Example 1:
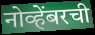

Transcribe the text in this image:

नोव्हेंबरची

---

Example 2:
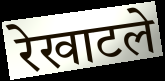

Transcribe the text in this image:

रेखाटले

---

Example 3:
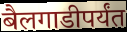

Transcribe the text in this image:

बैलगाडीपर्यंत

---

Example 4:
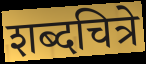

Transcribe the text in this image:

शब्दचित्रे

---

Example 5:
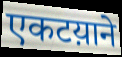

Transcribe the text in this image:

एकटय़ाने